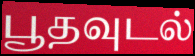
பூதவுடல்